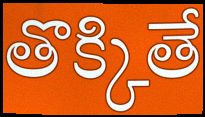
తొక్కితే